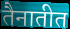
तैनातीत